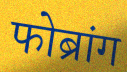
फोब्रांग